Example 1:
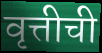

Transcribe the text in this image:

वृत्तीची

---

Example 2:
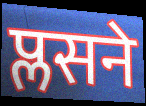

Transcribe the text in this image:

प्लसने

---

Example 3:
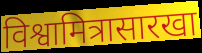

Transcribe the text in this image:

विश्वामित्रासारखा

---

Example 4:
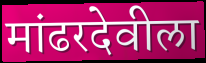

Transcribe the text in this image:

मांढरदेवीला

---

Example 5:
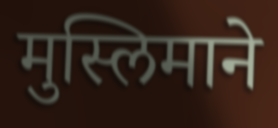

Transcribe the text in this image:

मुस्लिमाने